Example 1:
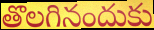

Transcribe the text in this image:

తొలగినందుకు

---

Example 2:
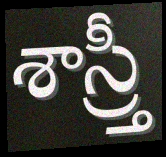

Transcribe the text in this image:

శాస్ర్తీ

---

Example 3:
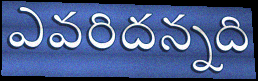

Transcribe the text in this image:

ఎవరిదన్నది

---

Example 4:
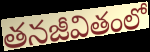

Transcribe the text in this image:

తనజీవితంలో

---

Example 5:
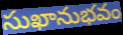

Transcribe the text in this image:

సుఖానుభవం